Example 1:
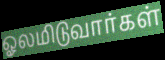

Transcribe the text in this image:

ஓலமிடுவார்கள்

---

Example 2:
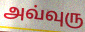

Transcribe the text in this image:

அவ்வுரு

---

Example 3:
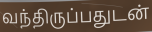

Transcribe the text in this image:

வந்திருப்பதுடன்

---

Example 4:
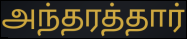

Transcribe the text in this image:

அந்தரத்தார்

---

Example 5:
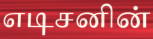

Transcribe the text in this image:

எடிசனின்